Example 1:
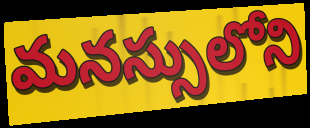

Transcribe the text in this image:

మనస్సులోని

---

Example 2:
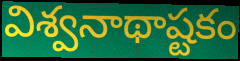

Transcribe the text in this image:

విశ్వనాథాష్టకం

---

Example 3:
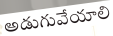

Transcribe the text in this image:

అడుగువేయాలి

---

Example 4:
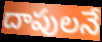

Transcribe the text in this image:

దాపులనే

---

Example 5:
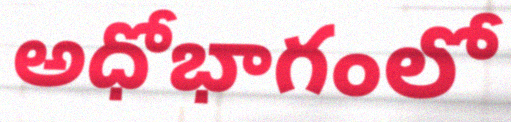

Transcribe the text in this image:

అధోభాగంలో